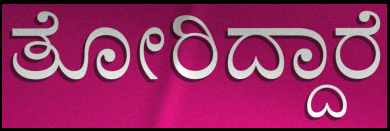
ತೋರಿದ್ದಾರೆ